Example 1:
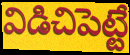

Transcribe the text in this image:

విడిచిపెట్టే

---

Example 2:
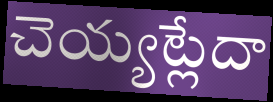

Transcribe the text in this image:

చెయ్యట్లేదా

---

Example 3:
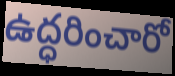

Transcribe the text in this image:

ఉద్ధరించారో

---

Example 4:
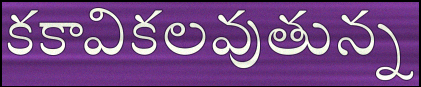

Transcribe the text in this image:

కకావికలవుతున్న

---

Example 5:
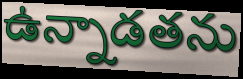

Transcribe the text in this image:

ఉన్నాడతను